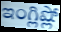
ఇంగ్లిష్లో